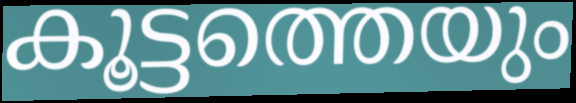
കൂട്ടത്തെയും